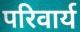
परिवार्य